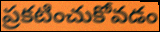
ప్రకటించుకోవడం